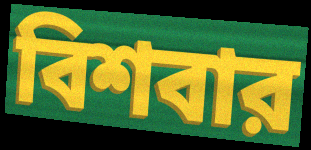
বিশবার